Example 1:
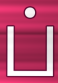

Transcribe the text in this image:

ப்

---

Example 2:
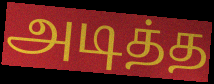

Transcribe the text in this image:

அடித்த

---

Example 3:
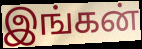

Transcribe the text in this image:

இங்கன்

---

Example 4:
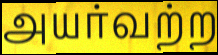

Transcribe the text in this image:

அயர்வற்ற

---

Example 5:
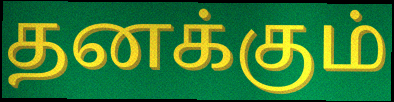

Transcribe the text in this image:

தனக்கும்